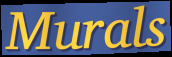
Murals